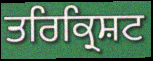
ਤਰਿਕ੍ਰਿਸ਼ਟ